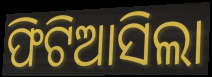
ଫିଟିଆସିଲା